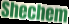
Shechem